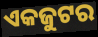
ଏକଜୁଟର